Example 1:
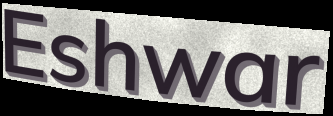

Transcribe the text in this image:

Eshwar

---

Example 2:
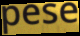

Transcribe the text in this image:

pese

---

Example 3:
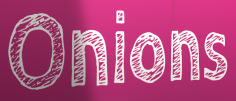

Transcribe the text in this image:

Onions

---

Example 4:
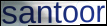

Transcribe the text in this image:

santoor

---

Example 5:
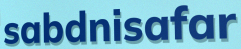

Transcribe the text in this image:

sabdnisafar